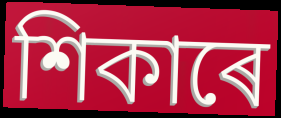
শিকাৰে